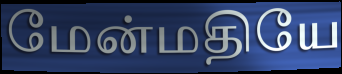
மேன்மதியே